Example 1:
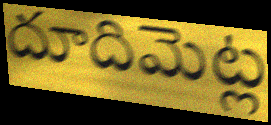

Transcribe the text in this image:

దూదిమెట్ల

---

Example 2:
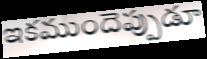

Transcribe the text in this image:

ఇకముందెప్పుడూ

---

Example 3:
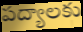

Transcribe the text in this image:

పద్యాలకు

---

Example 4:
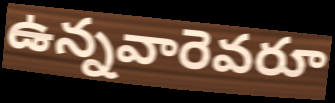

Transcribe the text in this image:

ఉన్నవారెవరూ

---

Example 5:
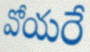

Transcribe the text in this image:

వోయరే